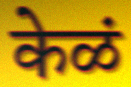
केळं